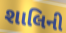
શાલિની